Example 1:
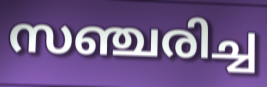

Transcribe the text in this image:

സഞ്ചരിച്ച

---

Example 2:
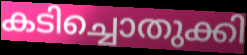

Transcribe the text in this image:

കടിച്ചൊതുക്കി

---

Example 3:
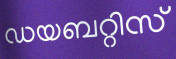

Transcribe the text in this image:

ഡയബറ്റിസ്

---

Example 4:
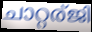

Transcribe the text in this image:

ചാറ്റര്ജി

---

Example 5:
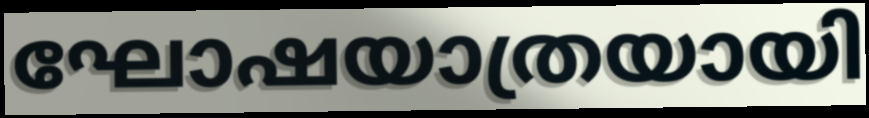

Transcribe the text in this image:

ഘോഷയാത്രയായി